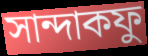
সান্দাকফু